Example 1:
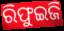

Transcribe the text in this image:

ରିଫୁଇଜି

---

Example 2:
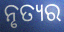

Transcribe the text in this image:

ନୃତ୍ୟର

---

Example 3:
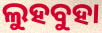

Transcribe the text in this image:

ଲୁହବୁହା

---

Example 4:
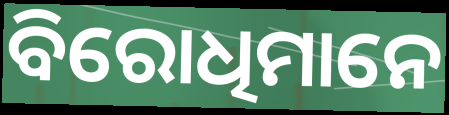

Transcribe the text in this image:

ବିରୋଧିମାନେ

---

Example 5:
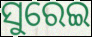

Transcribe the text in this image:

ସୁରେଇ